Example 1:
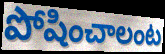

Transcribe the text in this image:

పోషించాలంట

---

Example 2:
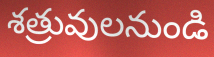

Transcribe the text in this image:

శత్రువులనుండి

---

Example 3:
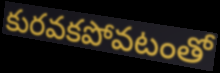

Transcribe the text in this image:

కురవకపోవటంతో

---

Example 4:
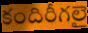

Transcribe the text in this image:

కందిరీగలై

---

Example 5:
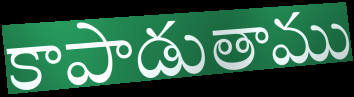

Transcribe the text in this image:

కాపాడుతాము